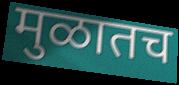
मुळातच